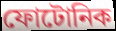
ফোটোনিক